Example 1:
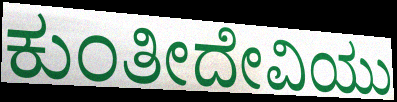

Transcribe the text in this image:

ಕುಂತೀದೇವಿಯು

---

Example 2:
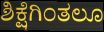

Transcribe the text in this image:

ಶಿಕ್ಷೆಗಿಂತಲೂ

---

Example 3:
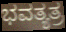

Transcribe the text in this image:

ಭವತ್ಯತ್ರ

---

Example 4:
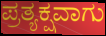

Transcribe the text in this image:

ಪ್ರತ್ಯಕ್ಷವಾಗು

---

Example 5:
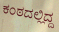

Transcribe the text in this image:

ಕಂಠದಲ್ಲಿದ್ದ